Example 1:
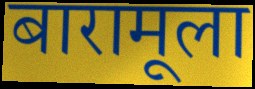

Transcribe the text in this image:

बारामूला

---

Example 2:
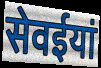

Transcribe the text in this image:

सेवईयां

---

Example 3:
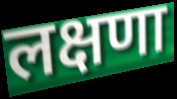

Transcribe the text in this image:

लक्षणा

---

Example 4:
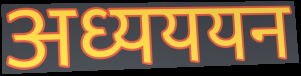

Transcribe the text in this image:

अध्यययन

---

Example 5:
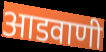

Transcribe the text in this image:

आडवाणी